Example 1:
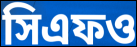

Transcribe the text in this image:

সিএফও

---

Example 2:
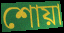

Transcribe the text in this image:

শোয়া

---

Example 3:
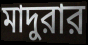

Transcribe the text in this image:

মাদুরার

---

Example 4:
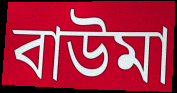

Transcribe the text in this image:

বাউমা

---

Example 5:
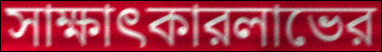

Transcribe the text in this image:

সাক্ষাৎকারলাভের